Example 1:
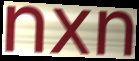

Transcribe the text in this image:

nxn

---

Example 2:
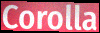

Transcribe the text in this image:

Corolla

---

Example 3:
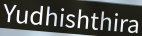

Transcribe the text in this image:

Yudhishthira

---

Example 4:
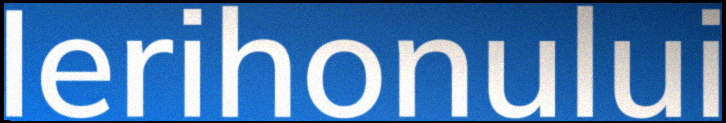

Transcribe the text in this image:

Ierihonului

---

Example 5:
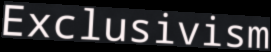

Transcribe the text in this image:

Exclusivism